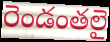
రెండంతలై